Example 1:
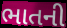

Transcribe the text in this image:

ભાતની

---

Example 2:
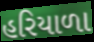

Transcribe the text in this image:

હરિયાળા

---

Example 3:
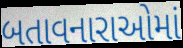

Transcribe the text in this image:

બતાવનારાઓમાં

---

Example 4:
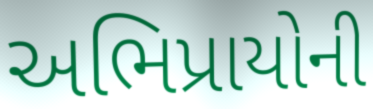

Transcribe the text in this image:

અભિપ્રાયોની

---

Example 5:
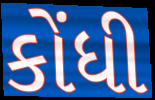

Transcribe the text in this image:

કોંધી